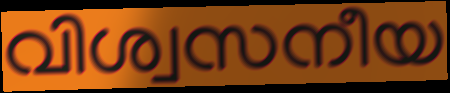
വിശ്വസനീയ